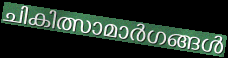
ചികിത്സാമാർഗങ്ങൾ